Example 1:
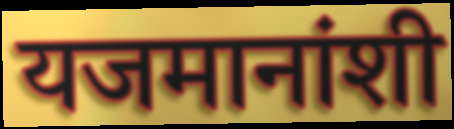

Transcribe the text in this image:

यजमानांशी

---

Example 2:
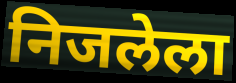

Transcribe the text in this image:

निजलेला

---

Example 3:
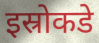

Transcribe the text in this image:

इस्रोकडे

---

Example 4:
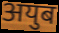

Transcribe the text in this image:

अयुब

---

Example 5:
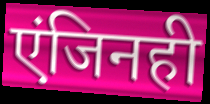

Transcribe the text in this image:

एंजिनही